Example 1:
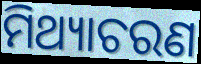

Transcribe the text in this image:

ମିଥ୍ୟାଚରଣ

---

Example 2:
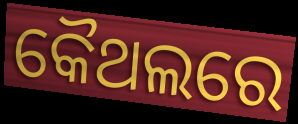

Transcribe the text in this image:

କୈଥଲରେ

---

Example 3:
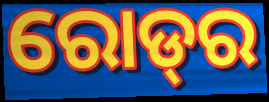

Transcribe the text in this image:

ରୋଡ୍‌ର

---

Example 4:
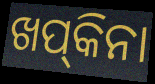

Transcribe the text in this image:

ଖପ୍‍କିନା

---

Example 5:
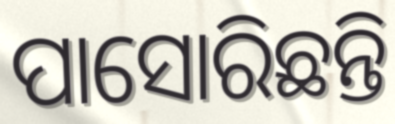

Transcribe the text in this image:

ପାସୋରିଛନ୍ତି